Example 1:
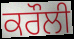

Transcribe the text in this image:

ਕਰੌਲੀ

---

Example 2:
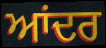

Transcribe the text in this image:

ਆਂਦਰ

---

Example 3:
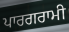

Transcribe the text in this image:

ਪਾਰਗਰਾਮੀ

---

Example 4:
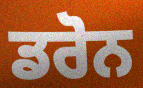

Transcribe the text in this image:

ਡਰੋਨ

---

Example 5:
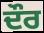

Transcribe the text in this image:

ਦੌਰ